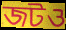
জটও